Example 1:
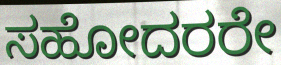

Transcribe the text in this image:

ಸಹೋದರರೇ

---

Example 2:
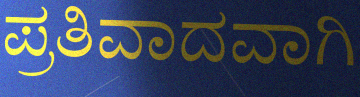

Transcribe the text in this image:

ಪ್ರತಿವಾದವಾಗಿ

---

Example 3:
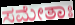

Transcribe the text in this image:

ಸಮೇತಾಃ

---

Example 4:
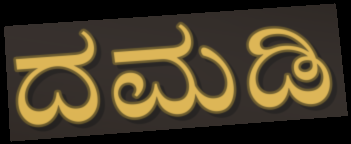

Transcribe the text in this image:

ದಮಡಿ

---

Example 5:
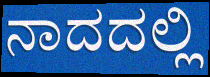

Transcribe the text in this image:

ನಾದದಲ್ಲಿ